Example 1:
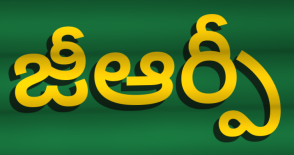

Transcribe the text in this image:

జీఆర్పీ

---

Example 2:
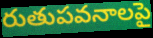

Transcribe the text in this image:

రుతుపవనాలపై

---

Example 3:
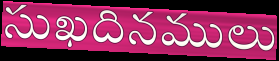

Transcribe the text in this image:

సుఖదినములు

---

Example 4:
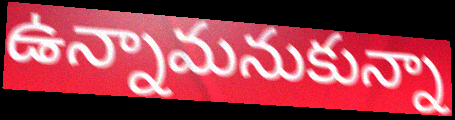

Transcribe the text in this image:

ఉన్నామనుకున్నా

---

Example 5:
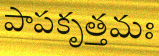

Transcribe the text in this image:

పాపకృత్తమః